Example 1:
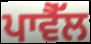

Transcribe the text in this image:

ਪਾਵੈੱਲ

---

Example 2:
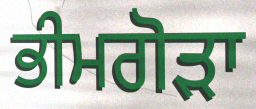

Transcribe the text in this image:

ਭੀਮਗੋੜਾ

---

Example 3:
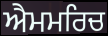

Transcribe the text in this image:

ਐਮਮਰਿਚ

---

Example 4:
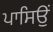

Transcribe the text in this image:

ਪਾਸਿਉਂ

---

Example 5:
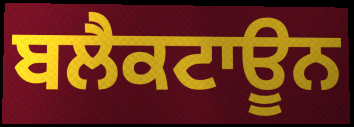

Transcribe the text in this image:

ਬਲੈਕਟਾਊਨ